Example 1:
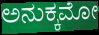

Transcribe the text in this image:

ಅನುಕ್ಕಮೋ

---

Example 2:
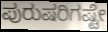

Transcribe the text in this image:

ಪುರುಷರಿಗಷ್ಟೇ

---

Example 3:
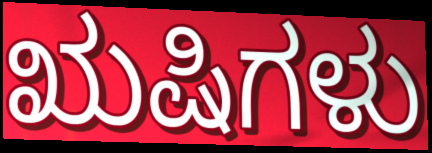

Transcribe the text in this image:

ಋಷಿಗಳು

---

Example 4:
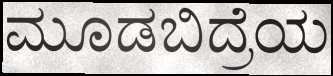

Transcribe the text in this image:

ಮೂಡಬಿದ್ರೆಯ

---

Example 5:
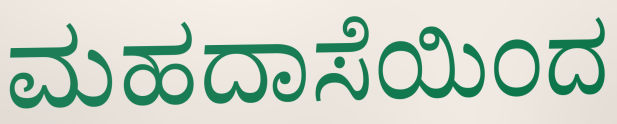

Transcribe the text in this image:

ಮಹದಾಸೆಯಿಂದ